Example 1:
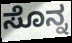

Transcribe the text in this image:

ಸೊನ್ನ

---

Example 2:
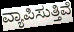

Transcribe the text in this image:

ವ್ಯಾಪಿಸುತ್ತಿವೆ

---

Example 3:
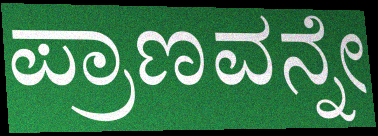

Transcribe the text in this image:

ಪ್ರಾಣವನ್ನೇ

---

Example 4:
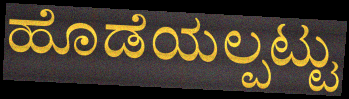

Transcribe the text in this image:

ಹೊಡೆಯಲ್ಪಟ್ಟು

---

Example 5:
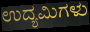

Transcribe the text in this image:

ಉದ್ಯಮಿಗಳು